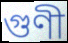
গুণী